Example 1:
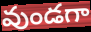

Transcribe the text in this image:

వుండగా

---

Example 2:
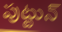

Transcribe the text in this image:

పుట్టున్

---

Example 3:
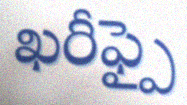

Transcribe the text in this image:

ఖరీఫ్పై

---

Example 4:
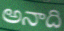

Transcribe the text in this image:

అనాది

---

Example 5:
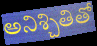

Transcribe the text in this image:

అనిశ్చితితో